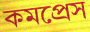
কমপ্রেস